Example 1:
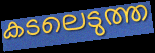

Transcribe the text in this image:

കടലെടുത്ത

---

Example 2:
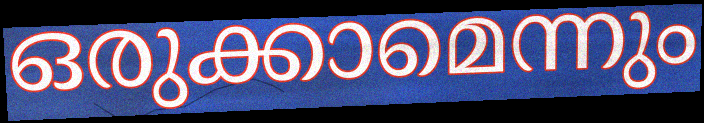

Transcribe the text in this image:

ഒരുക്കാമെന്നും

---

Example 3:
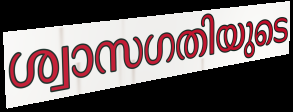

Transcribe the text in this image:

ശ്വാസഗതിയുടെ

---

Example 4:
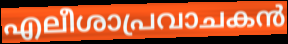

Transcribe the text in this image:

എലീശാപ്രവാചകൻ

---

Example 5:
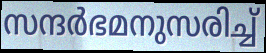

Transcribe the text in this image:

സന്ദർഭമനുസരിച്ച്